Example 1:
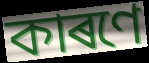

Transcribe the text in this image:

কাৰণে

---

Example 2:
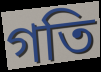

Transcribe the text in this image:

গতি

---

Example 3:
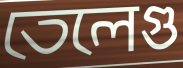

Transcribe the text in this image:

তেলেগু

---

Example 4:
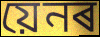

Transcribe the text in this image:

য়েনৰ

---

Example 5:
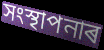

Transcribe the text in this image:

সংস্থাপনাৰ